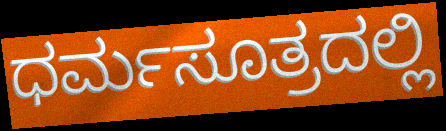
ಧರ್ಮಸೂತ್ರದಲ್ಲಿ